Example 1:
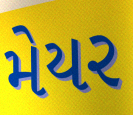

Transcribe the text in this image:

મેયર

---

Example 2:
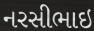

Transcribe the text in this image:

નરસીભાઇ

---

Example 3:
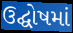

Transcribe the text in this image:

ઉદ્ઘોષમાં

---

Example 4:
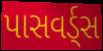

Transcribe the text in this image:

પાસવર્ડ્સ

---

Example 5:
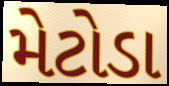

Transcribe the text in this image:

મેટોડા